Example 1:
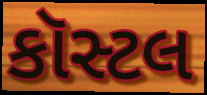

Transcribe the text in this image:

કૉસ્ટલ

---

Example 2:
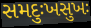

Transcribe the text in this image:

સમદુઃખસુખઃ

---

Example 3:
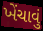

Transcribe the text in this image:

ખેંચાવું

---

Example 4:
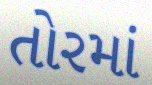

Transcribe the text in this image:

તોરમાં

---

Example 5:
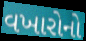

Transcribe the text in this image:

વખારોનો